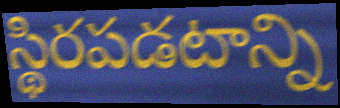
స్థిరపడటాన్ని